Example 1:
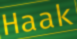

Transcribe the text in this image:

Haak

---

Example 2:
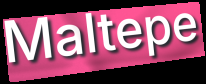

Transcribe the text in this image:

Maltepe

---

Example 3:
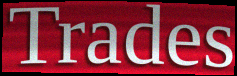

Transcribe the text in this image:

Trades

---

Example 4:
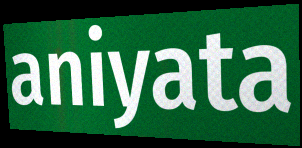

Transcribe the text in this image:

aniyata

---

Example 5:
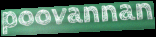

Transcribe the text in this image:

poovannan